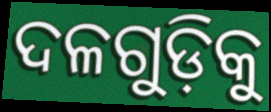
ଦଳଗୁଡ଼ିକୁ